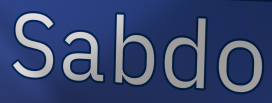
Sabdo